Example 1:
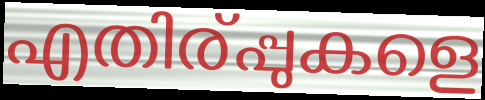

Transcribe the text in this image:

എതിര്പ്പുകളെ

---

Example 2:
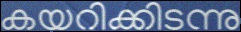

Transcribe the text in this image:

കയറിക്കിടന്നു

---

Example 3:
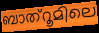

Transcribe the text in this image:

ബാത്റൂമിലെ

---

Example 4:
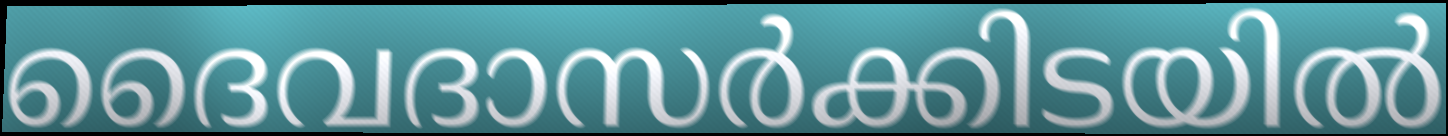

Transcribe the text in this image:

ദൈവദാസർക്കിടയിൽ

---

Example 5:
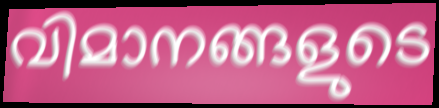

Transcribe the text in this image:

വിമാനങ്ങളുടെ